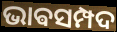
ଭାଵସମ୍ପଦ